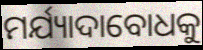
ମର୍ଯ୍ୟାଦାବୋଧକୁ